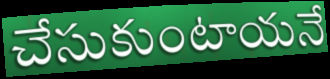
చేసుకుంటాయనే